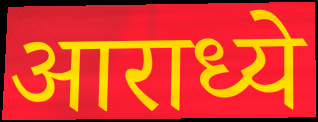
आराध्ये